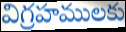
విగ్రహములకు